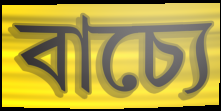
বাচ্যে